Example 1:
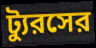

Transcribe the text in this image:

ট্যুরসের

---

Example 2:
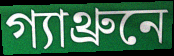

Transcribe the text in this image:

গ্যাথ্রুনে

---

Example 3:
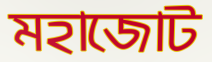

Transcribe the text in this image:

মহাজোট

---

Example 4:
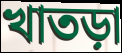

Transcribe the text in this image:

খাতড়া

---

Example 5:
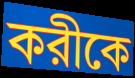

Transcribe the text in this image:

করীকে